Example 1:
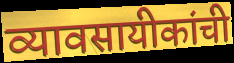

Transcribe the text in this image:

व्यावसायीकांची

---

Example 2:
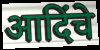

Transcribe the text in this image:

आदिंचे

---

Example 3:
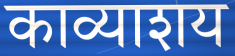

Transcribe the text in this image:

काव्याशय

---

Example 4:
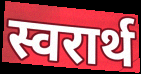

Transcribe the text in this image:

स्वरार्थ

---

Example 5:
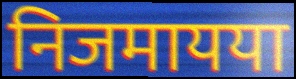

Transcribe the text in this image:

निजमायया